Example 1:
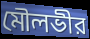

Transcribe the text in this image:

মৌলভীর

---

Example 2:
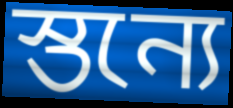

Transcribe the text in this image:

স্তন্যে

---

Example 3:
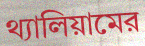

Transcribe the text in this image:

থ্যালিয়ামের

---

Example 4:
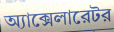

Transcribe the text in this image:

অ্যাক্সেলারেটর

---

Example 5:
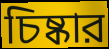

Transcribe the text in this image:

চিষ্কার